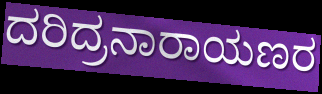
ದರಿದ್ರನಾರಾಯಣರ